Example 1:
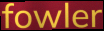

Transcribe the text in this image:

fowler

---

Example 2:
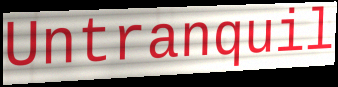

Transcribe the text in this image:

Untranquil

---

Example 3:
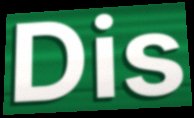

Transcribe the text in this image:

Dis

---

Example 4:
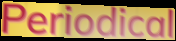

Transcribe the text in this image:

Periodical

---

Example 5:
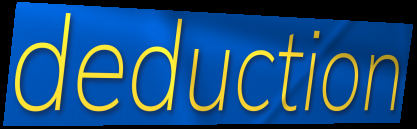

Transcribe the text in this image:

deduction